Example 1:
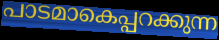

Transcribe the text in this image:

പാടമാകെപ്പറക്കുന്ന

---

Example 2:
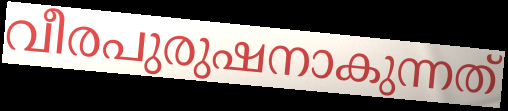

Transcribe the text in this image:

വീരപുരുഷനാകുന്നത്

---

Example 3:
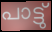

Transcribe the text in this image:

പാട്ടു്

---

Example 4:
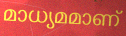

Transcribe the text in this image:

മാധ്യമമാണ്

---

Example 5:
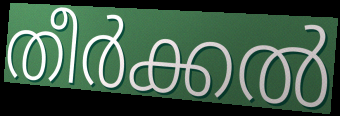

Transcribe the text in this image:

തീർക്കൽ